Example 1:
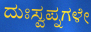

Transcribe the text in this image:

ದುಃಸ್ವಪ್ನಗಳೇ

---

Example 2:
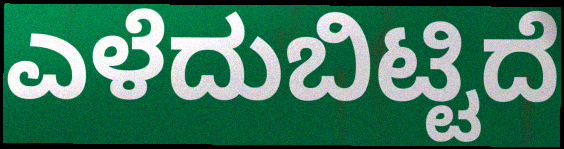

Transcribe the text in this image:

ಎಳೆದುಬಿಟ್ಟಿದೆ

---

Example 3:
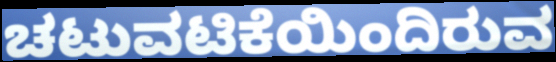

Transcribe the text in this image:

ಚಟುವಟಿಕೆಯಿಂದಿರುವ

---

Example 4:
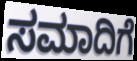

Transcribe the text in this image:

ಸಮಾದಿಗೆ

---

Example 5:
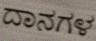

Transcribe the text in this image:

ದಾನಗಳ